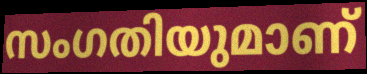
സംഗതിയുമാണ്